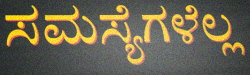
ಸಮಸ್ಯೆಗಳೆಲ್ಲ